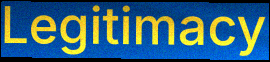
Legitimacy